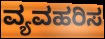
ವ್ಯವಹರಿಸ